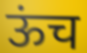
ऊंच